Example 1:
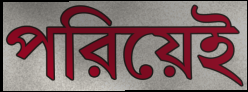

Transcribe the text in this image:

পরিয়েই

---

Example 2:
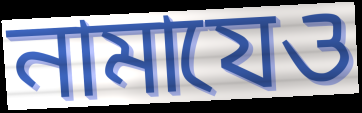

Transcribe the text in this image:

নামাযেও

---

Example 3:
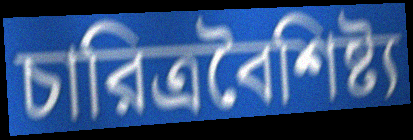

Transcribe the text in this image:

চারিত্রবৈশিষ্ট্য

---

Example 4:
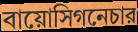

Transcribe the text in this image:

বায়োসিগনেচার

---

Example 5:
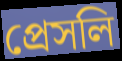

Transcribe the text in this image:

প্রেসলি